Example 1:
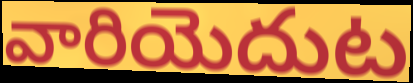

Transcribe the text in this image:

వారియెదుట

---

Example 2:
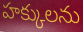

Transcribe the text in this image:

హక్కులను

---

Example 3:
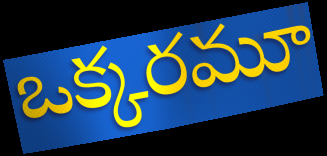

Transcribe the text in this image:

ఒక్కరమూ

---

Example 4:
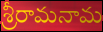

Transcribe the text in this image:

శ్రీరామనామ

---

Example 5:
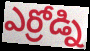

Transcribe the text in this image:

ఎర్రోడ్ని